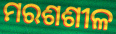
ମରଶଶୀଳ